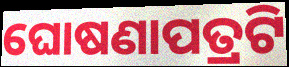
ଘୋଷଣାପତ୍ରଟି